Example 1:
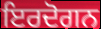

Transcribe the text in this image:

ਇਰਦੋਗਨ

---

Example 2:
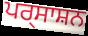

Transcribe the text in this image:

ਪਰ੍ਸਾਸ਼ਨ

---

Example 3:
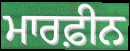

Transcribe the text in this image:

ਮਾਰਫ਼ੀਨ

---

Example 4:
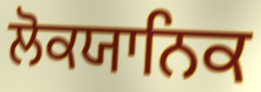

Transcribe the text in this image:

ਲੋਕਯਾਨਿਕ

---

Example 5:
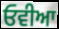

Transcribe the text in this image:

ਓਵੀਆ